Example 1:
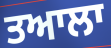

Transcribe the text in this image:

ਤਆਲਾ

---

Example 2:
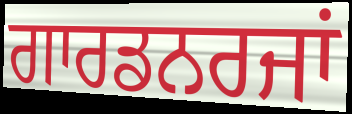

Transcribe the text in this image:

ਗਾਰਡਨਰਜਾਂ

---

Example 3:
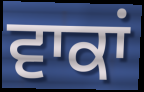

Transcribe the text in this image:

ਵਾਕਾਂ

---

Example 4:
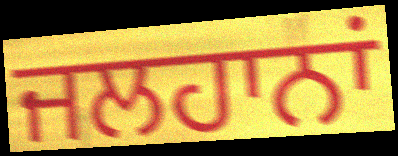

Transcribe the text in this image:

ਜਲਹਾਨਾਂ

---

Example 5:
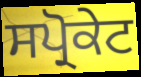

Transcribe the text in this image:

ਸਪ੍ਰੋਕੇਟ